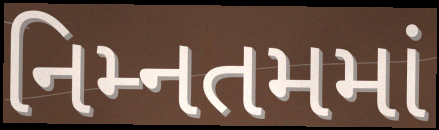
નિમ્નતમમાં